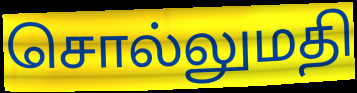
சொல்லுமதி